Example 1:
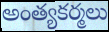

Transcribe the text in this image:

అంత్యకర్మలు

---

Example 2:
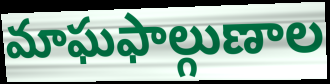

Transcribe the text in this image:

మాఘఫాల్గుణాల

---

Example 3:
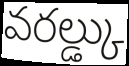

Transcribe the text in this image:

వరల్డ్కు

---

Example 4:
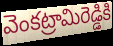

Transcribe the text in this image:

వెంకట్రామిరెడ్డికి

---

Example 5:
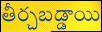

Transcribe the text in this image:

తీర్చబడ్డాయి